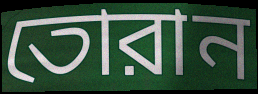
তোরান